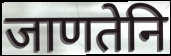
जाणतेनि